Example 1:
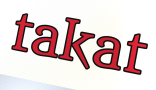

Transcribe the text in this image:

takat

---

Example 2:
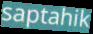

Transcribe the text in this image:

saptahik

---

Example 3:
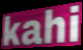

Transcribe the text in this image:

kahi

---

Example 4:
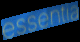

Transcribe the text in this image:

essentia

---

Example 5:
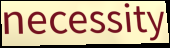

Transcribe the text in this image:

necessity